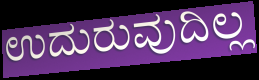
ಉದುರುವುದಿಲ್ಲ